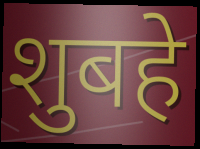
शुबहे